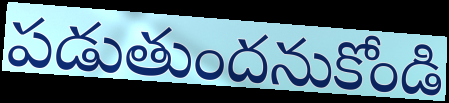
పడుతుందనుకోండి